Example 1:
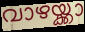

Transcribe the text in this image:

വാഴയ്ക്കാ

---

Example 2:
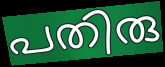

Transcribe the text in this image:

പതിരു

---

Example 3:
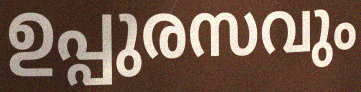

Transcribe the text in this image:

ഉപ്പുരസവും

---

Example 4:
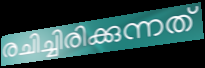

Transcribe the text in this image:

രചിച്ചിരിക്കുന്നത്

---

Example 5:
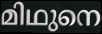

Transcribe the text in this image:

മിഥുനെ